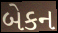
બેકન